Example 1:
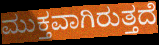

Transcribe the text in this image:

ಮುಕ್ತವಾಗಿರುತ್ತದೆ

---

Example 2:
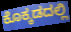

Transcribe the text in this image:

ಕೊಕ್ಕಡದಲ್ಲಿ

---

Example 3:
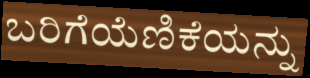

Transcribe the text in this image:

ಬರಿಗೆಯೆಣಿಕೆಯನ್ನು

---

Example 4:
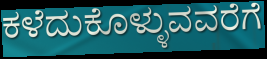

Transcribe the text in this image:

ಕಳೆದುಕೊಳ್ಳುವವರೆಗೆ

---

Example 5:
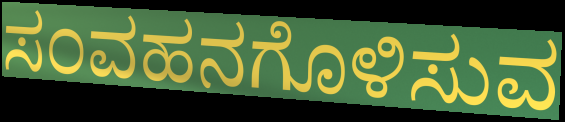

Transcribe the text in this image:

ಸಂವಹನಗೊಳಿಸುವ